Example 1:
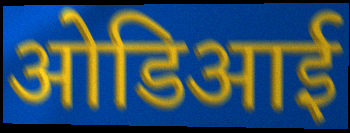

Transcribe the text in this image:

ओडिआई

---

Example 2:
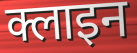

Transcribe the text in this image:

क्लाइन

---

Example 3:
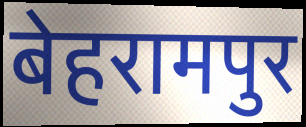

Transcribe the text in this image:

बेहरामपुर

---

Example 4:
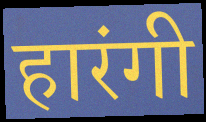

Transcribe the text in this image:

हारंगी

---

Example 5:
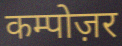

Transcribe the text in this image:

कम्पोज़र